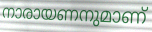
നാരായണനുമാണ്